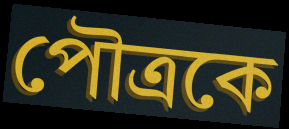
পৌত্রকে